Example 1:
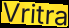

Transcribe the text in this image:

Vritra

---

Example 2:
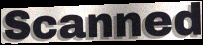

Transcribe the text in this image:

Scanned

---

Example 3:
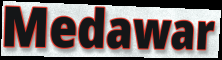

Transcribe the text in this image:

Medawar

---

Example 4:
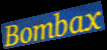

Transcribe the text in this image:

Bombax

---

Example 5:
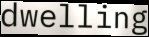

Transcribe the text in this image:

dwelling